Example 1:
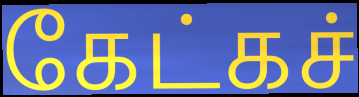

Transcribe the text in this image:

கேட்கச்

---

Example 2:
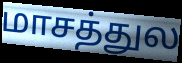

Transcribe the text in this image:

மாசத்துல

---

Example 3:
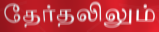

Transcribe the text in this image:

தேர்தலிலும்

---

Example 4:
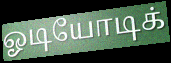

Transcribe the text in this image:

ஓடியோடிக்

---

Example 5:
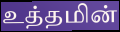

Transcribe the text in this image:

உத்தமின்